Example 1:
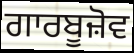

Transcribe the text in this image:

ਗਾਰਬੂਜ਼ੋਵ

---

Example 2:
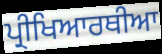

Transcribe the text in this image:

ਪ੍ਰੀਖਿਆਰਥੀਆ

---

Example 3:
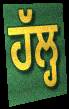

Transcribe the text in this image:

ਹੱਲ੍ਹ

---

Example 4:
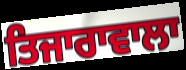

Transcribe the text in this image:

ਤਿਜਾਰਾਵਾਲਾ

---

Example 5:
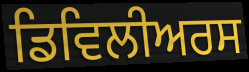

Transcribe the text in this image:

ਡਿਵਿਲੀਅਰਸ